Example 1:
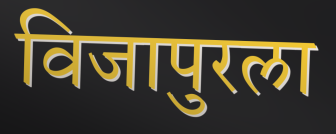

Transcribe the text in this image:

विजापुरला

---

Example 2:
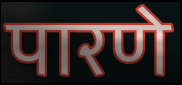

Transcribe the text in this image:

पारणे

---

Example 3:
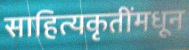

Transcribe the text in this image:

साहित्यकृतींमधून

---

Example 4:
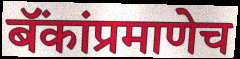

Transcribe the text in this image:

बॅंकांप्रमाणेच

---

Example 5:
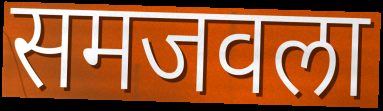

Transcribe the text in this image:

समजवला